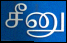
சீனு